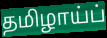
தமிழாய்ப்